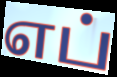
எப்